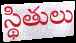
స్థితులు